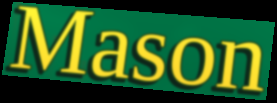
Mason